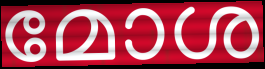
മോശ